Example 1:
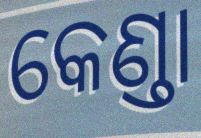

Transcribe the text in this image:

କେଣ୍ଡା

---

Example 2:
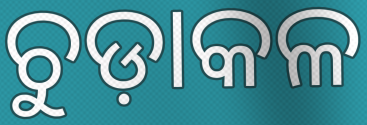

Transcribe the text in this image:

ଚୁଡ଼ାକଳ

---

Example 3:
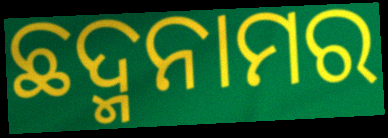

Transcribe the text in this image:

ଛଦ୍ମନାମର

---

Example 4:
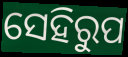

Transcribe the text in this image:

ସେହିରୁପ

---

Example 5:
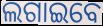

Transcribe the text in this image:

ଲଗାଇବେ